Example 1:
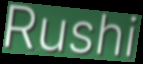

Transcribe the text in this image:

Rushi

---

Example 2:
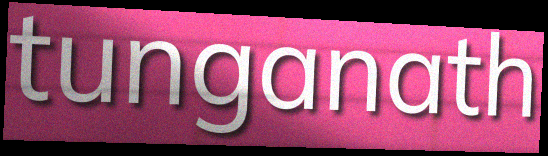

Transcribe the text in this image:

tunganath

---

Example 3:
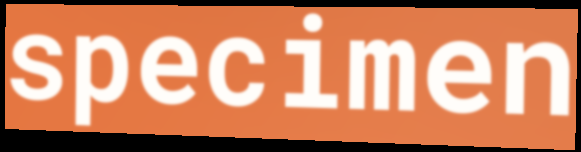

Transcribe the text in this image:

specimen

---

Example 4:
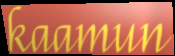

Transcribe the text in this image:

kaamun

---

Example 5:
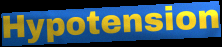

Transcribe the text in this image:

Hypotension